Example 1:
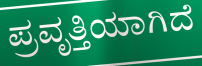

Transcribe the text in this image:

ಪ್ರವೃತ್ತಿಯಾಗಿದೆ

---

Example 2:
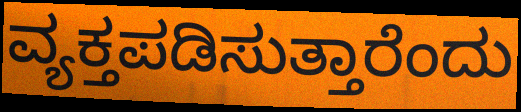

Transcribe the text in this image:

ವ್ಯಕ್ತಪಡಿಸುತ್ತಾರೆಂದು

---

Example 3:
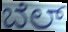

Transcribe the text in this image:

ಬೆಲ್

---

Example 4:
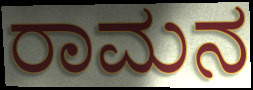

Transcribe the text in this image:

ರಾಮನ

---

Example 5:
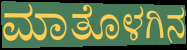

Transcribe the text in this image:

ಮಾತೊಳಗಿನ